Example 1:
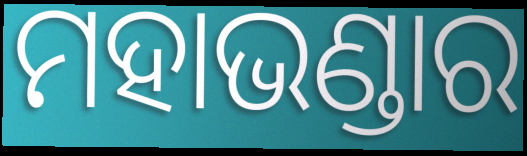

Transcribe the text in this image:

ମହାଭଣ୍ଡାର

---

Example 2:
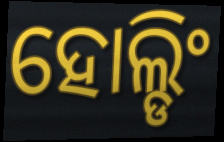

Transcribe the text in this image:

ହୋଲ୍ଡିଂ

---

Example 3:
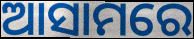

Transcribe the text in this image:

ଆସାମରେ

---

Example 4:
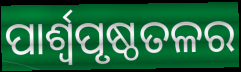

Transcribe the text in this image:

ପାର୍ଶ୍ଵପୃଷ୍ଠତଳର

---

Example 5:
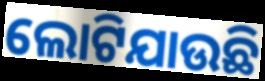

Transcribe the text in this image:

ଲୋଟିଯାଉଛି